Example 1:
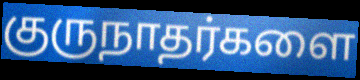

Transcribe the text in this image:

குருநாதர்களை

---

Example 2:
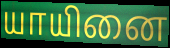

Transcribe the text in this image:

யாயினை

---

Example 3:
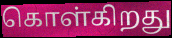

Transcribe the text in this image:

கொள்கிறது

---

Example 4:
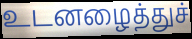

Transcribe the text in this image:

உடனழைத்துச்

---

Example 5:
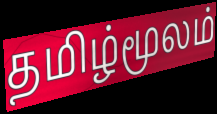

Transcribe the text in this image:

தமிழ்மூலம்